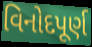
વિનોદપૂર્ણ